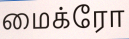
மைக்ரோ